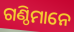
ଗଣ୍ଠିମାନେ